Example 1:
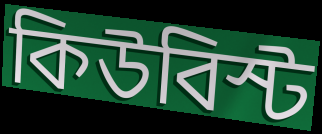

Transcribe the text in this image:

কিউবিস্ট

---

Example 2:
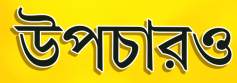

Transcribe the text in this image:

উপচারও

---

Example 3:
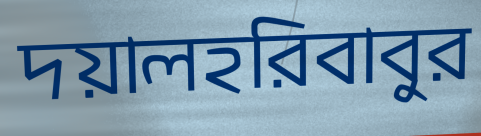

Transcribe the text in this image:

দয়ালহরিবাবুর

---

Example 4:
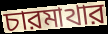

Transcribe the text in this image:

চারমাথার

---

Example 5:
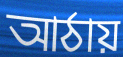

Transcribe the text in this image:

আঠায়